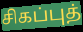
சிகப்புத்